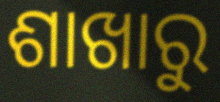
ଶାଖାରୁ